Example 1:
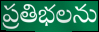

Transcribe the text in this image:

ప్రతిభలను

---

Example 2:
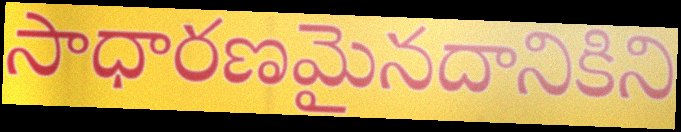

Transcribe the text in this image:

సాధారణమైనదానికిని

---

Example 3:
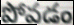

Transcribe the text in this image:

పోవడం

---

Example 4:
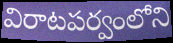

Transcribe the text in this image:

విరాటపర్వంలోని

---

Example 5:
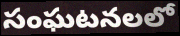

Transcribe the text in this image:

సంఘటనలలో